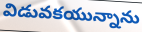
విడువకయున్నాను